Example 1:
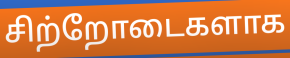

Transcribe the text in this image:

சிற்றோடைகளாக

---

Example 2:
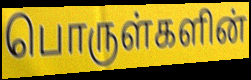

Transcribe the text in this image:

பொருள்களின்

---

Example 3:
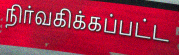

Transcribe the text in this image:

நிர்வகிக்கப்பட்ட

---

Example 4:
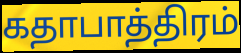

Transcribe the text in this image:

கதாபாத்திரம்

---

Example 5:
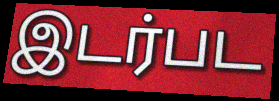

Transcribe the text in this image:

இடர்பட